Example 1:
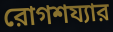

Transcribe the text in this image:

রোগশয্যার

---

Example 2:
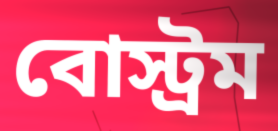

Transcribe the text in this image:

বোস্ট্রম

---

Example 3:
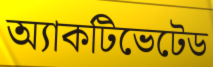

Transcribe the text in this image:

অ্যাকটিভেটেড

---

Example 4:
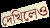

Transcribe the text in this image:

দেখিলেও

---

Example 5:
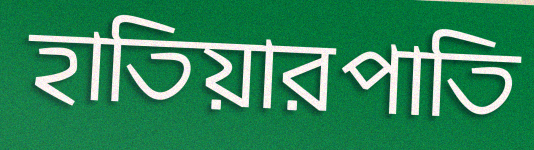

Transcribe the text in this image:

হাতিয়ারপাতি